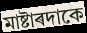
মাষ্টাৰদাকে